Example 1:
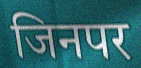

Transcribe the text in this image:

जिनपर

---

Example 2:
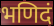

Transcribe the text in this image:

भणिदं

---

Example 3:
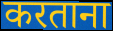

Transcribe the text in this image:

करताना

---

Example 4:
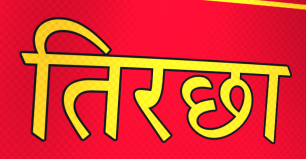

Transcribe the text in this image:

तिरछा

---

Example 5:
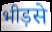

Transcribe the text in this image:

भीड़से